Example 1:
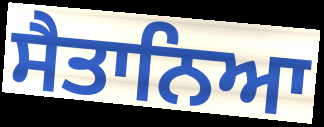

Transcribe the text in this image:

ਸੈਤਾਨਿਆ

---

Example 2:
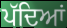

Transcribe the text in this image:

ਪੱਦਿਆਂ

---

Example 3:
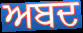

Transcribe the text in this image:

ਅਬਦ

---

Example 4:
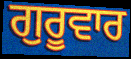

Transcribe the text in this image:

ਗੁਰੂਵਾਰ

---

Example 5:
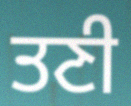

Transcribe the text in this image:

ਤਣੀ